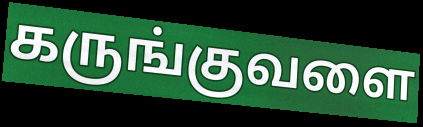
கருங்குவளை